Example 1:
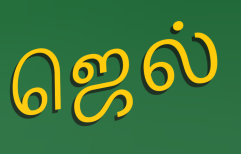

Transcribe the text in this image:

ஜெல்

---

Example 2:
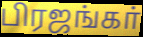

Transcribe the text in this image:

பிரஜங்கர்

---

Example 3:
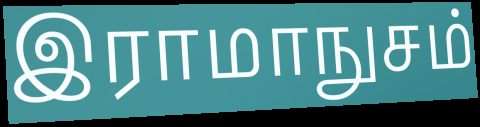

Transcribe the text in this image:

இராமாநுசம்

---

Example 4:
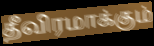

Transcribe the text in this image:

தீவிரமாக்கும்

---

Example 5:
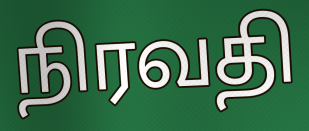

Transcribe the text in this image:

நிரவதி